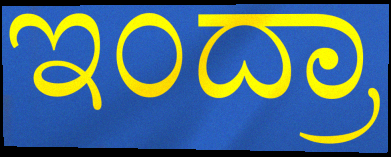
ಇಂದ್ರಾ